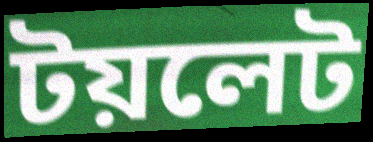
টয়লেট